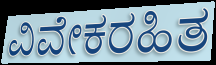
ವಿವೇಕರಹಿತ